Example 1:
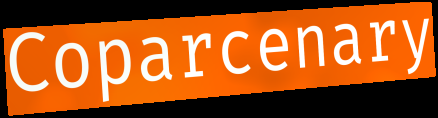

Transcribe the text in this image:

Coparcenary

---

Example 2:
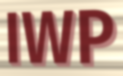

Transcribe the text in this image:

IWP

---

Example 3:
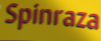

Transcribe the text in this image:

Spinraza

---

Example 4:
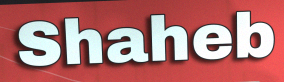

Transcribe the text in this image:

Shaheb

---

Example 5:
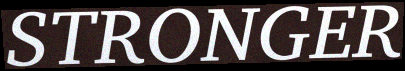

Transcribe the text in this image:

STRONGER